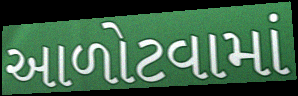
આળોટવામાં